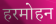
हरमोहन